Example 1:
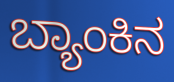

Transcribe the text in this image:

ಬ್ಯಾಂಕಿನ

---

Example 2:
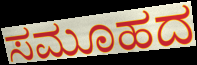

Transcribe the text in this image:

ಸಮೂಹದ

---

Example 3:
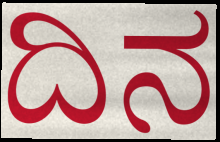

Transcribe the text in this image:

ದಿನ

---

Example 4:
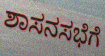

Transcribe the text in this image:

ಶಾಸನಸಭೆಗೆ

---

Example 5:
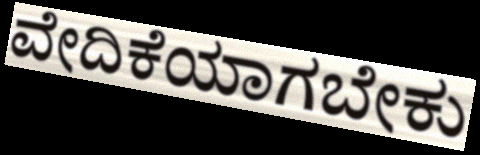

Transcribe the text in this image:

ವೇದಿಕೆಯಾಗಬೇಕು